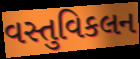
વસ્તુવિકલન